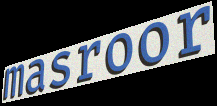
masroor